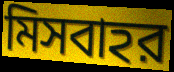
মিসবাহর